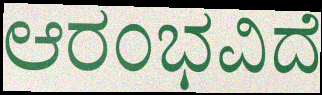
ಆರಂಭವಿದೆ